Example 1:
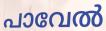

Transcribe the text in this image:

പാവേൽ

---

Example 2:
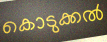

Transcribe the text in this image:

കൊടുക്കൽ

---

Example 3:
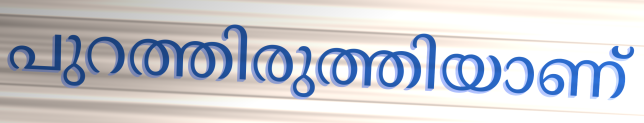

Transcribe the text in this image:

പുറത്തിരുത്തിയാണ്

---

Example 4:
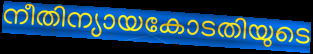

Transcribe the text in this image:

നീതിന്യായകോടതിയുടെ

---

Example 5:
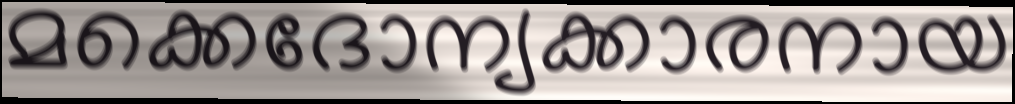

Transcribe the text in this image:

മക്കെദോന്യക്കാരനായ